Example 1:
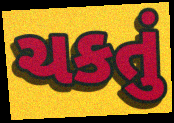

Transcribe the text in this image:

ચકતું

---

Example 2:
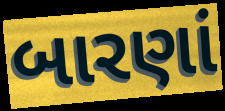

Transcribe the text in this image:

બારણાં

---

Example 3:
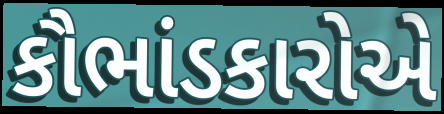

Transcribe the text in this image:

કૌભાંડકારોએ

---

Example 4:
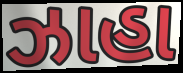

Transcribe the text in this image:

ઝાહા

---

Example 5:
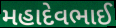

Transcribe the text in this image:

મહાદેવભાઈ